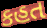
કહત